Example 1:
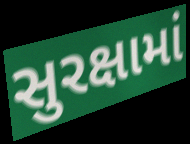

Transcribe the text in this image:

સુરક્ષામાં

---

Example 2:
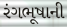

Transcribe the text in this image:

રંગભૂષાની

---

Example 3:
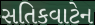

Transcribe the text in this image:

સતિકવાટેન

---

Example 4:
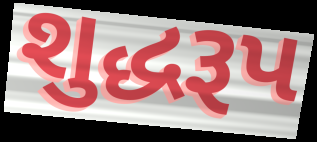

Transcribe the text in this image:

શુદ્ધરૂપ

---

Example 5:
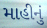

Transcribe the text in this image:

માહીનું